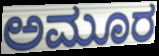
ಅಮೂರ